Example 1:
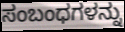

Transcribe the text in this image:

ಸಂಬಂಧಗಳನ್ನು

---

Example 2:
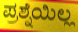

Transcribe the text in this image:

ಪ್ರಶ್ನೆಯಿಲ್ಲ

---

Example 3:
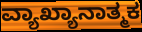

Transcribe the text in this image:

ವ್ಯಾಖ್ಯಾನಾತ್ಮಕ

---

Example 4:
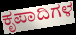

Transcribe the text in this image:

ಕೃಪಾದಿಗಳ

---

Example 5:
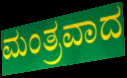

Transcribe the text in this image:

ಮಂತ್ರವಾದ